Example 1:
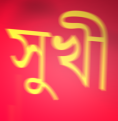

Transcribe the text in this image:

সুখী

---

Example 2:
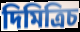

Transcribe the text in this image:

দিমিত্রিচ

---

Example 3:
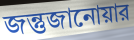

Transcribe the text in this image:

জন্তুজানোয়ার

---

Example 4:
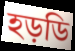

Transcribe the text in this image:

হড়ডি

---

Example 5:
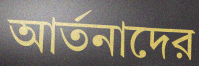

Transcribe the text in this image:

আর্তনাদের